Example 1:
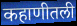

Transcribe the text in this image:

कहाणीतली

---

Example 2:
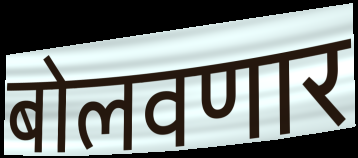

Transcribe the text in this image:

बोलवणार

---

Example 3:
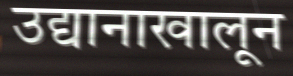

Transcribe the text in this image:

उद्यानाखालून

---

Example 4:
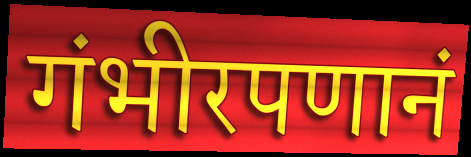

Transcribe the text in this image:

गंभीरपणानं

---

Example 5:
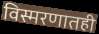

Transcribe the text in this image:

विस्मरणातही